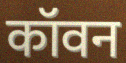
कॉवन